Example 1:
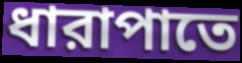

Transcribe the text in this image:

ধারাপাতে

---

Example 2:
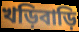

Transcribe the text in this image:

খড়িবাড়ি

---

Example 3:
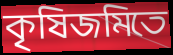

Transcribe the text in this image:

কৃষিজমিতে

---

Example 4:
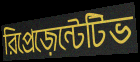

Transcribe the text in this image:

রিপ্রেজ়েন্টেটিভ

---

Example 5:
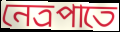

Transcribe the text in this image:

নেত্রপাতে